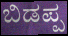
ಬಿಡಪ್ಪ